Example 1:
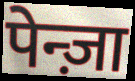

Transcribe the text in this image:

पेन्ज़ा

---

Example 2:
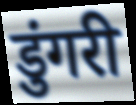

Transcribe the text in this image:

डुंगरी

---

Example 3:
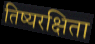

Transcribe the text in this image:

तिष्यरक्षिता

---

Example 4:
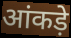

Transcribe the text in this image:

आंकड़े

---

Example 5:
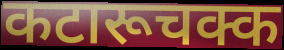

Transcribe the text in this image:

कटारूचक्क